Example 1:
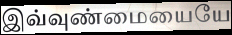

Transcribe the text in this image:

இவ்வுண்மையையே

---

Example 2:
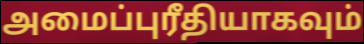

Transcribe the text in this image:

அமைப்புரீதியாகவும்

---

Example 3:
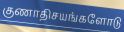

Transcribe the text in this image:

குணாதிசயங்களோடு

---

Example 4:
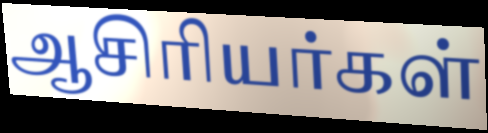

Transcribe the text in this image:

ஆசிரியர்கள்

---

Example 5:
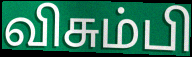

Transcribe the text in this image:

விசும்பி